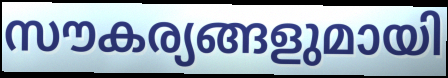
സൗകര്യങ്ങളുമായി